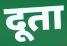
दूता